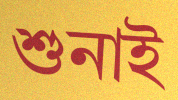
শুনাই